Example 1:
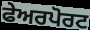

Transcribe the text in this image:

ਫੇਅਰਪੋਰਟ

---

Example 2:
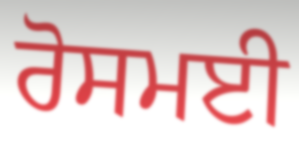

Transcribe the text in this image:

ਰੋਸਮਈ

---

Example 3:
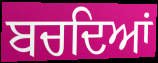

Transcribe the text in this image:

ਬਚਦਿਆਂ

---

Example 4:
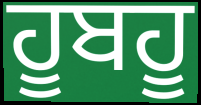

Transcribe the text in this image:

ਹੂਬਹੂ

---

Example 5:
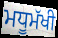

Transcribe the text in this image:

ਮਧੂਮੱਖੀ